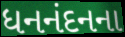
ધનનંદનના